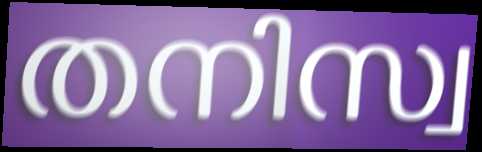
തനിസ്വ